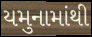
યમુનામાંથી